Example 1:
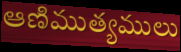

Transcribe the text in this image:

ఆణిముత్యములు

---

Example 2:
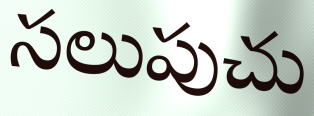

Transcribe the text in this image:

సలుపుచు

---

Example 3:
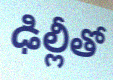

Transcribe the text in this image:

ఢిల్లీతో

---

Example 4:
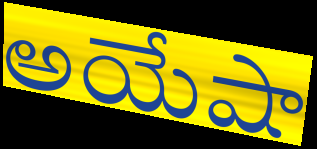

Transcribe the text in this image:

అయేషా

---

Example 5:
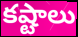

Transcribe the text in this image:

కష్టాలు